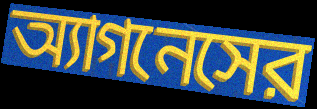
অ্যাগনেসের